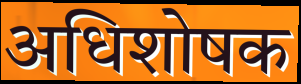
अधिशोषक